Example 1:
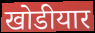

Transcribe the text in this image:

खोडीयार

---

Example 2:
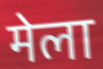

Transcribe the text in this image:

मेला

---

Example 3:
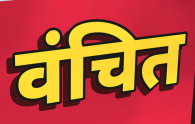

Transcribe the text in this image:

वंचित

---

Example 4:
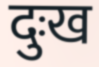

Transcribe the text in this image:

दुःख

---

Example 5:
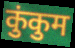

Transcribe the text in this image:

कुंकुम